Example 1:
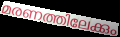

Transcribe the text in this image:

മരണത്തിലേക്കും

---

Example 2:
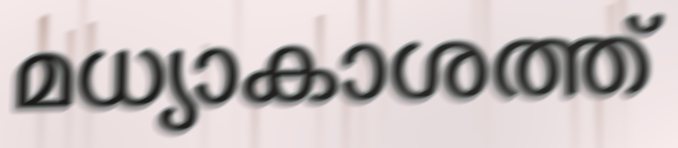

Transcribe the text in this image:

മധ്യാകാശത്ത്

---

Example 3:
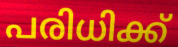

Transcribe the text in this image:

പരിധിക്ക്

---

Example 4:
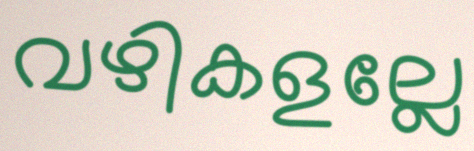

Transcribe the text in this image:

വഴികളല്ലേ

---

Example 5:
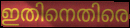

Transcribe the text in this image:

ഇതിനെതിരെ